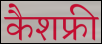
कैशफ्री